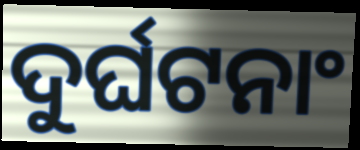
ଦୁର୍ଘଟନାଂ